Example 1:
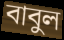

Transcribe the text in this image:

বাবুল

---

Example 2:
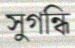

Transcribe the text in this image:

সুগন্ধি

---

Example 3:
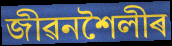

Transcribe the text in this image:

জীৱনশৈলীৰ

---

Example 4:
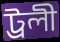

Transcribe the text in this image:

ট্ৰলী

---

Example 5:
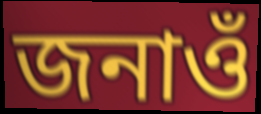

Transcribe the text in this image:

জনাওঁ